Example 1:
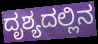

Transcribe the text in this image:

ದೃಶ್ಯದಲ್ಲಿನ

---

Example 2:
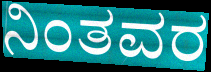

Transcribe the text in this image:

ನಿಂತವರ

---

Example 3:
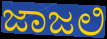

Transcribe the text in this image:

ಜಾಜಲಿ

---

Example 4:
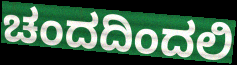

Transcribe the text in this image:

ಚಂದದಿಂದಲಿ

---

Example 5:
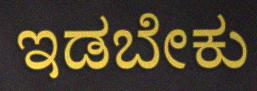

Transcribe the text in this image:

ಇಡಬೇಕು